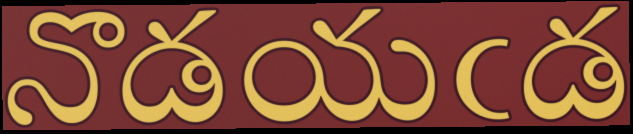
నొడయఁడ